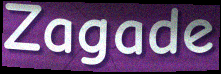
Zagade